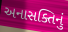
અનાસક્તિનું